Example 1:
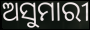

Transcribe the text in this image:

ଅସୁମାରୀ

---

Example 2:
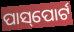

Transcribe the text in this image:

ପାସ୍‌ପୋର୍ଟ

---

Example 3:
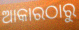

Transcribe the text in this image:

ଆକାରଠାରୁ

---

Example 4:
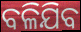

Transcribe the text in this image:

ବଳିଯିବ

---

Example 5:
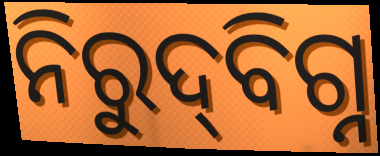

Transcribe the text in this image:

ନିରୁଦ୍‍ବିଗ୍ନ